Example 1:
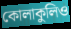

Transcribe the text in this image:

কোলাকুলিও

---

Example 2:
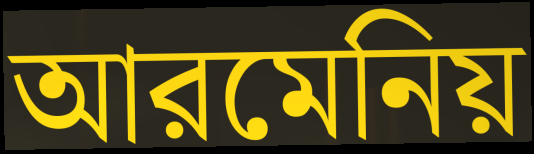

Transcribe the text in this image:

আরমেনিয়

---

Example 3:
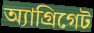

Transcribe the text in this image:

অ্যাগ্রিগেট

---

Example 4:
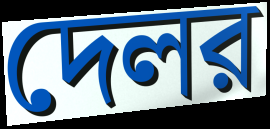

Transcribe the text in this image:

দেলর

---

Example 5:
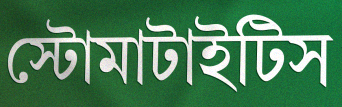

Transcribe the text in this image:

স্টোমাটাইটিস